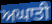
ਅਘਾਤੀ